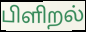
பிளிறல்